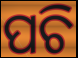
ପଚି